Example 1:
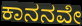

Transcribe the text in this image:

ಕಾನನವೇ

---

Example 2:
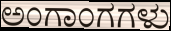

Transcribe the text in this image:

ಅಂಗಾಂಗಗಳು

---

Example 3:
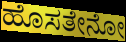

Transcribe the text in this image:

ಹೊಸತೇನೋ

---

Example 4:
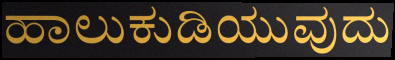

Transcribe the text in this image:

ಹಾಲುಕುಡಿಯುವುದು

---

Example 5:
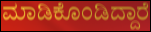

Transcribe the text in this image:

ಮಾಡಿಕೊಂಡಿದ್ದಾರೆ